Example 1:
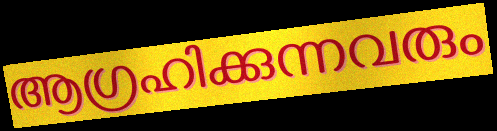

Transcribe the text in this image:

ആഗ്രഹിക്കുന്നവരും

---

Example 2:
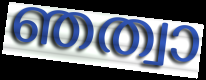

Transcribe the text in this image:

ഞത്വാ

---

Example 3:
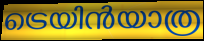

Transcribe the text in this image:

ട്രെയിൻയാത്ര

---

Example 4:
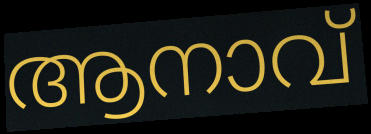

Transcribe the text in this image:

ആനാവ്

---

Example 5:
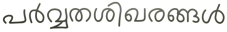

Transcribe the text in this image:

പർവ്വതശിഖരങ്ങൾ